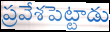
ప్రవేశపెట్టాడు